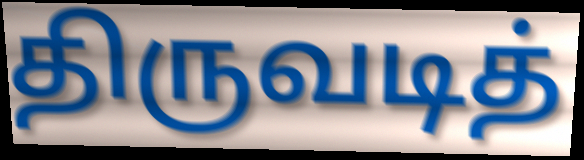
திருவடித்